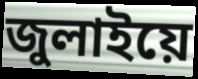
জুলাইয়ে